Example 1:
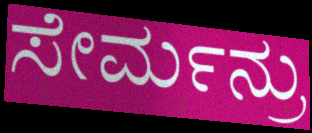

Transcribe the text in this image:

ಸೇರ್ಮನ್ರು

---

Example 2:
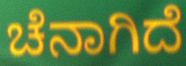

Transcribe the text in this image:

ಚೆನಾಗಿದೆ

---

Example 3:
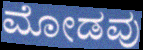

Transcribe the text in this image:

ಮೋಡವು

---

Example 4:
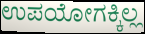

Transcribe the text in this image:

ಉಪಯೋಗಕ್ಕಿಲ್ಲ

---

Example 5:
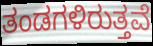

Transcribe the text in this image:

ತಂಡಗಳಿರುತ್ತವೆ